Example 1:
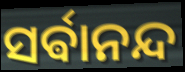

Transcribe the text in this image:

ସର୍ଵାନନ୍ଦ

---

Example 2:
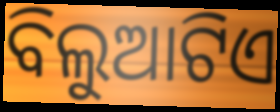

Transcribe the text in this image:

ବିଲୁଆଟିଏ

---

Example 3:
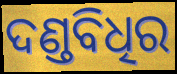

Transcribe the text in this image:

ଦଣ୍ଡବିଧିର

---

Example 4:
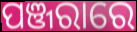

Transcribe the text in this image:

ପଞ୍ଜରାରେ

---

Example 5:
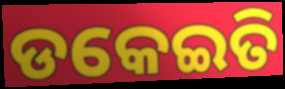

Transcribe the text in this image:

ଡକେଇତି